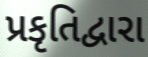
પ્રકૃતિદ્વારા